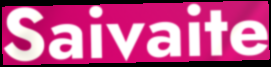
Saivaite